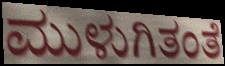
ಮುಳುಗಿತಂತೆ